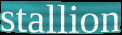
stallion